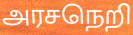
அரசநெறி